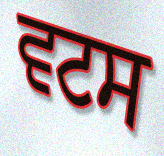
ਵਟਸ